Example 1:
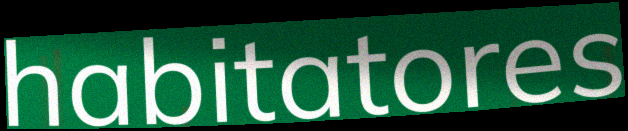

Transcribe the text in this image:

habitatores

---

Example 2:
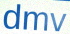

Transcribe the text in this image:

dmv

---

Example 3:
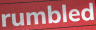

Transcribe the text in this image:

rumbled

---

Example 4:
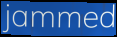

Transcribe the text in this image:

jammed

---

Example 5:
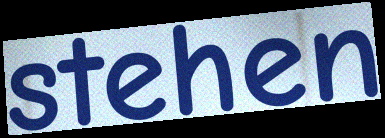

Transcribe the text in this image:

stehen